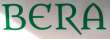
BERA